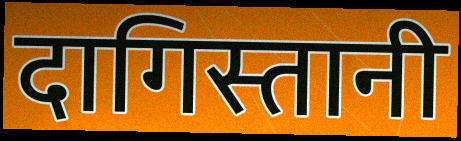
दागिस्तानी